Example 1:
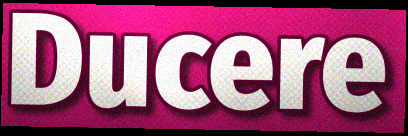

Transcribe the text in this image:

Ducere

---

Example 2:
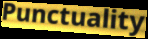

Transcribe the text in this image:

Punctuality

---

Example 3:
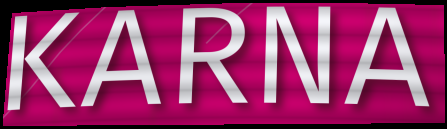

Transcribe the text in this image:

KARNA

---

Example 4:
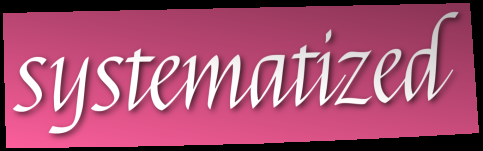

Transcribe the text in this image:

systematized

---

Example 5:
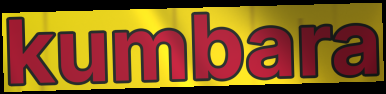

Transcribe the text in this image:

kumbara